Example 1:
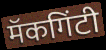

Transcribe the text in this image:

मॅकगिंटी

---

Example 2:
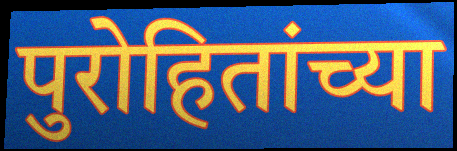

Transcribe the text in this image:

पुरोहितांच्या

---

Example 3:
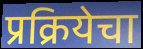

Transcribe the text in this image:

प्रक्रियेचा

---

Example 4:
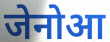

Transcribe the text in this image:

जेनोआ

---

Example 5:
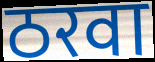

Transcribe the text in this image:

ठरवा